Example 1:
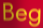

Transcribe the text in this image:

Beg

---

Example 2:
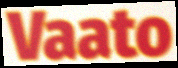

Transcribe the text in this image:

Vaato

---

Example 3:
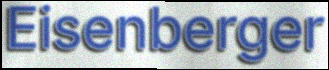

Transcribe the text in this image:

Eisenberger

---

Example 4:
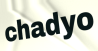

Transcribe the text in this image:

chadyo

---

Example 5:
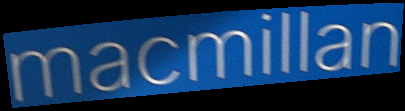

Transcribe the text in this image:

macmillan